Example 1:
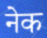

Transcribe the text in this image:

नेक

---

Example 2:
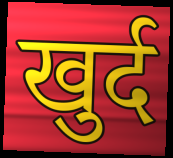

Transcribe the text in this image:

खुर्द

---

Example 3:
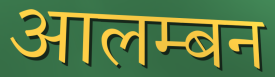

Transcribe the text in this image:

आलम्बन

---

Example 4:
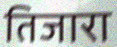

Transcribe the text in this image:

तिजारा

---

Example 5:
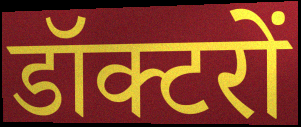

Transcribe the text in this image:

डॉक्टरों